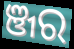
ଞ୍ଜର